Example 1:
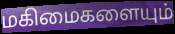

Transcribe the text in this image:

மகிமைகளையும்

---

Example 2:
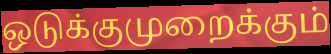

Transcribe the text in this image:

ஒடுக்குமுறைக்கும்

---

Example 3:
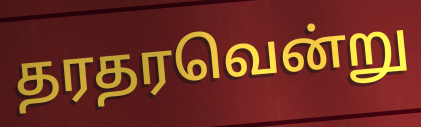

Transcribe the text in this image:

தரதரவென்று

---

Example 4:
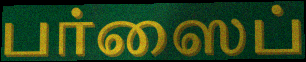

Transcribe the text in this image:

பர்ஸைப்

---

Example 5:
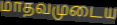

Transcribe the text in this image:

மாதவமுடைய